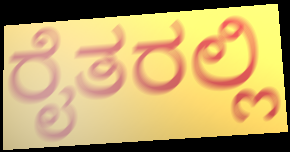
ರೈತರಲ್ಲಿ